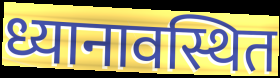
ध्यानावस्थित